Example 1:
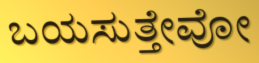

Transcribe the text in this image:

ಬಯಸುತ್ತೇವೋ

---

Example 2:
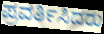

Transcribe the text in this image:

ಪ್ರವರ್ತಿಸಿದರು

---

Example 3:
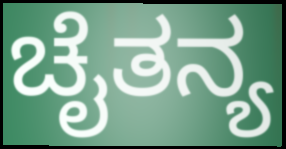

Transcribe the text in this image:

ಚೈತನ್ಯ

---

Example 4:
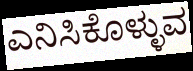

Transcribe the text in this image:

ಎನಿಸಿಕೊಳ್ಳುವ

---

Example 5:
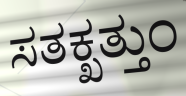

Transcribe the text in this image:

ಸತಕ್ಖತ್ತುಂ